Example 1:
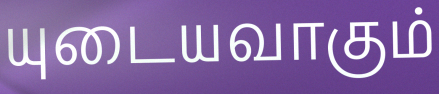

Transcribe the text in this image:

யுடையவாகும்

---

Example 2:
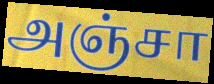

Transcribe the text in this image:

அஞ்சா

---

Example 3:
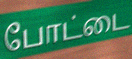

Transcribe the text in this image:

போட்டை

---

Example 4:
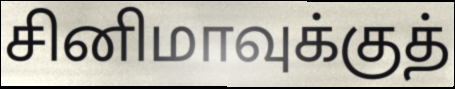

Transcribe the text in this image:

சினிமாவுக்குத்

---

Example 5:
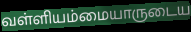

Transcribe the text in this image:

வள்ளியம்மையாருடைய